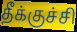
தீக்குச்சி